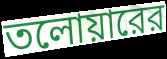
তলোয়ারের